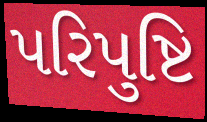
પરિપુષ્ટિ